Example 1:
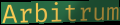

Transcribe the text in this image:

Arbitrum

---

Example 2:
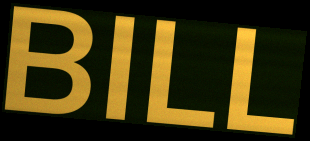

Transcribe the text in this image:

BILL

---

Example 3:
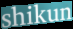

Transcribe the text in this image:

shikun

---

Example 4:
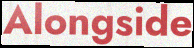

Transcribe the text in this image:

Alongside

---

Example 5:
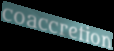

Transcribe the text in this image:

coaccretion